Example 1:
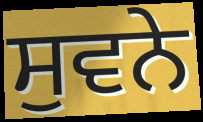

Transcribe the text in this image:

ਸੁਵਨੇ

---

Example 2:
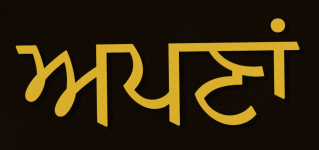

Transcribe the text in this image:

ਅਪਣਾਂ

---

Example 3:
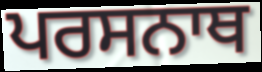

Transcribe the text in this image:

ਪਰਸਨਾਥ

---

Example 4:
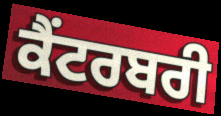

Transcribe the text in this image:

ਕੈਂਟਰਬਰੀ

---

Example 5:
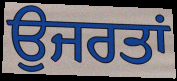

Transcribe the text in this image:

ਉਜਰਤਾਂ